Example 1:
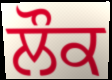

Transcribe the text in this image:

ਲੌਕ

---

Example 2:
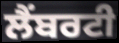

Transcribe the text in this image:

ਲੈਂਬਰਟੀ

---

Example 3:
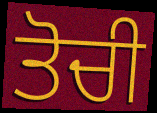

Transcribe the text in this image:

ਤੋਚੀ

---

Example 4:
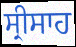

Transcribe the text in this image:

ਸ੍ਰੀਸਾਹ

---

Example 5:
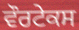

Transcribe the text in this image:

ਵੌਰਟੇਕਸ